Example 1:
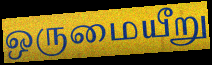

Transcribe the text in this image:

ஒருமையீறு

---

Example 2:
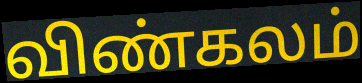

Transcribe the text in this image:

விண்கலம்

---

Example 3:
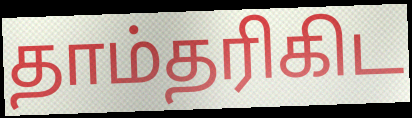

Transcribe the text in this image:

தாம்தரிகிட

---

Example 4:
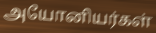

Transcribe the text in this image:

அயோனியர்கள்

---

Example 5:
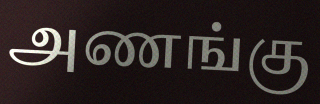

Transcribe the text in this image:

அணங்கு